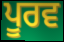
ਪੂਰਵ